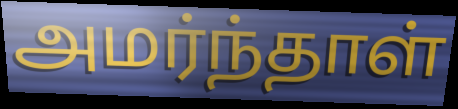
அமர்ந்தாள்